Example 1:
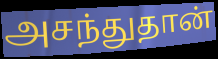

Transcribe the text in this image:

அசந்துதான்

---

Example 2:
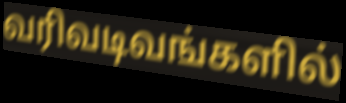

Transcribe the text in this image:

வரிவடிவங்களில்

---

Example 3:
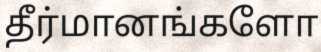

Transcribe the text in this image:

தீர்மானங்களோ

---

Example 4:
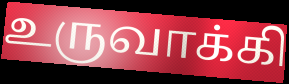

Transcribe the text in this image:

உருவாக்கி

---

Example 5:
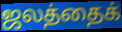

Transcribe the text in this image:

ஜலத்தைக்